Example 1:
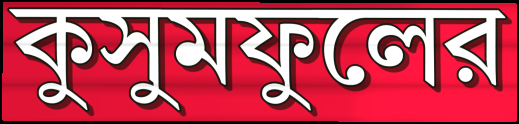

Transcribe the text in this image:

কুসুমফুলের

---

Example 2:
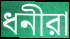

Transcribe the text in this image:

ধনীরা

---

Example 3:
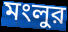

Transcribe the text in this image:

মংলুর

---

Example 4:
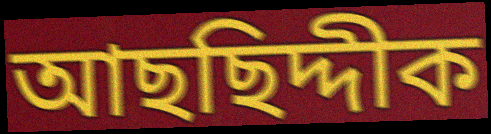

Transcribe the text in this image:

আছছিদ্দীক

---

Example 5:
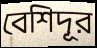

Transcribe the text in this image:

বেশিদূর